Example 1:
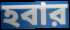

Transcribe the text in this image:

হবার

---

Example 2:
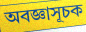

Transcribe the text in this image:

অবজ্ঞাসূচক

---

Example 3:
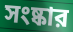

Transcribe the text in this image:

সংষ্কার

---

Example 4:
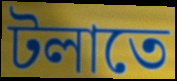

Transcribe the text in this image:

টলাতে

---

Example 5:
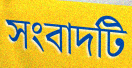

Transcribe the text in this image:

সংবাদটি